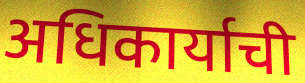
अधिकार्याची